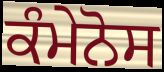
ਕੰਮੇਨੋਸ